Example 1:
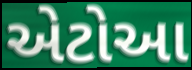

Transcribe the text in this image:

એટોઆ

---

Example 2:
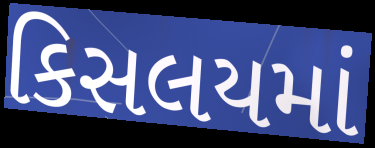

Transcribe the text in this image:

કિસલયમાં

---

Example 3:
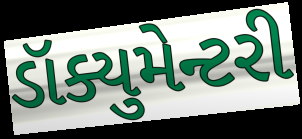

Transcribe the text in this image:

ડૉક્યુમેન્ટરી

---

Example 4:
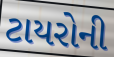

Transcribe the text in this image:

ટાયરોની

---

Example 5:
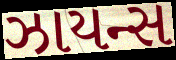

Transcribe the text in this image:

ઝાયન્સ